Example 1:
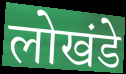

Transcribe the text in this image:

लोखंडे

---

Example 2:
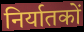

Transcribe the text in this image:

निर्यातकों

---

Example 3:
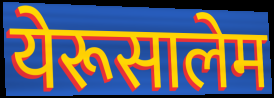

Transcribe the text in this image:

येरूसालेम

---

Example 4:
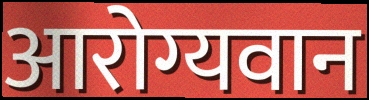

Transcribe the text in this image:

आरोग्यवान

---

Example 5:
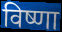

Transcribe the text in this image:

विष्णा